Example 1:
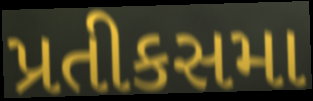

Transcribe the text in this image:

પ્રતીકસમા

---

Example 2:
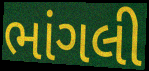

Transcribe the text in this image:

ભાંગલી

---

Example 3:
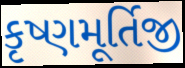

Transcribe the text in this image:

કૃષ્ણમૂર્તિજી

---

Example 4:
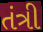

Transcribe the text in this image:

તંત્રી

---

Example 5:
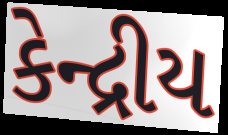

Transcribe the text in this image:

કેન્દ્રીય